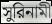
সুরিনামী